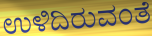
ಉಳಿದಿರುವಂತೆ